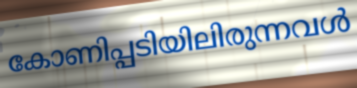
കോണിപ്പടിയിലിരുന്നവൾ